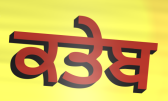
ਕਤੇਬ